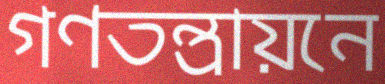
গণতন্ত্রায়নে